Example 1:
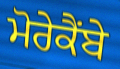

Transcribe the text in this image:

ਮੋਰੇਕੈਂਬੇ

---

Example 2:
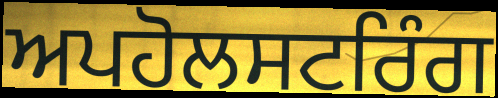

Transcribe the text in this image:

ਅਪਹੋਲਸਟਰਿੰਗ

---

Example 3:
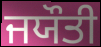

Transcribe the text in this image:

ਜਯੌਤੀ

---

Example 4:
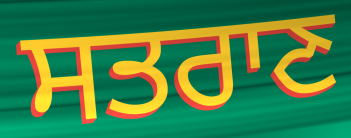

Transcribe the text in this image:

ਸਤਰਾਣ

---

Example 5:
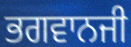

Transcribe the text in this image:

ਭਗਵਾਨਜੀ